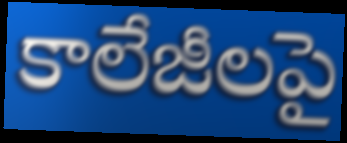
కాలేజీలపై